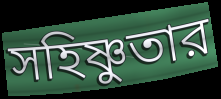
সহিষ্ণুতার